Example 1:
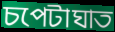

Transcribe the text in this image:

চপেটাঘাত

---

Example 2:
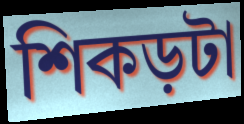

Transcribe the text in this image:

শিকড়টা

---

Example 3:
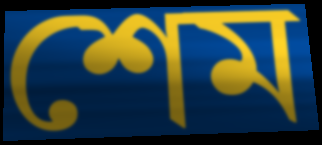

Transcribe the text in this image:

শেম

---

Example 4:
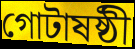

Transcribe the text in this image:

গোটাষষ্ঠী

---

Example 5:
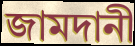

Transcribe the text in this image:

জামদানী